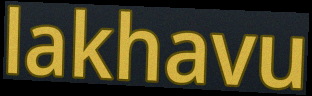
lakhavu